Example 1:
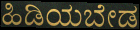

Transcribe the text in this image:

ಹಿಡಿಯಬೇಡ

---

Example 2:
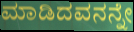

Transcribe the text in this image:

ಮಾಡಿದವನನ್ನೇ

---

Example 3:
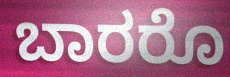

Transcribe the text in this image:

ಬಾರರೊ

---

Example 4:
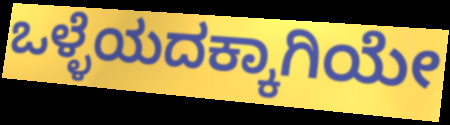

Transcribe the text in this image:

ಒಳ್ಳೆಯದಕ್ಕಾಗಿಯೇ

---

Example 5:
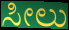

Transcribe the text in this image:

ಸೀಲು